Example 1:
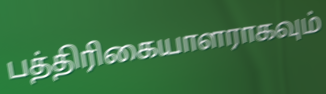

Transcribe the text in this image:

பத்திரிகையாளராகவும்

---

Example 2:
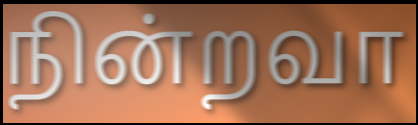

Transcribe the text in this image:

நின்றவா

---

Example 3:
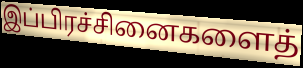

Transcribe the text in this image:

இப்பிரச்சினைகளைத்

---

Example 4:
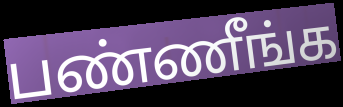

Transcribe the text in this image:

பண்ணீங்க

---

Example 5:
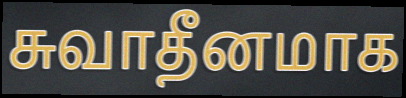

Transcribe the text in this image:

சுவாதீனமாக